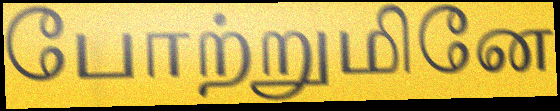
போற்றுமினே